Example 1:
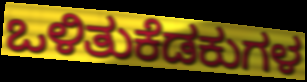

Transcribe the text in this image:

ಒಳಿತುಕೆಡಕುಗಳ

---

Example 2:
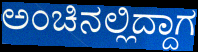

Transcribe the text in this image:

ಅಂಚಿನಲ್ಲಿದ್ದಾಗ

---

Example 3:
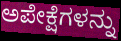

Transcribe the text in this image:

ಅಪೇಕ್ಷೆಗಳನ್ನು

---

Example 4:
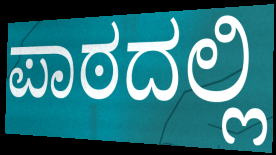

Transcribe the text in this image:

ಪಾಠದಲ್ಲಿ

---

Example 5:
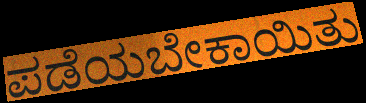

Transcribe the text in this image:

ಪಡೆಯಬೇಕಾಯಿತು